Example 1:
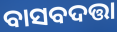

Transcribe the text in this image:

ବାସବଦତ୍ତା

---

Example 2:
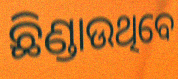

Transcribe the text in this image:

ଛିଣ୍ଡାଉଥିବେ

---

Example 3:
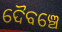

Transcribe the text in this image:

ଦୈବଞ୍ଚେ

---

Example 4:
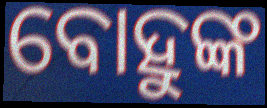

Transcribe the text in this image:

ବୋହୁଙ୍କ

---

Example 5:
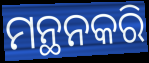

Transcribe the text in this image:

ମନ୍ଥନକରି